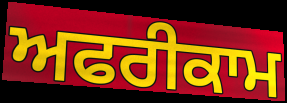
ਅਫਰੀਕਾਮ